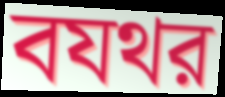
বযথর